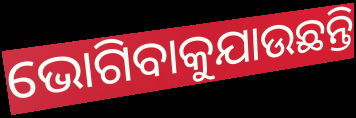
ଭୋଗିବାକୁଯାଉଛନ୍ତି